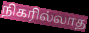
நிகரில்லாத